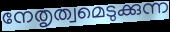
നേതൃത്വമെടുക്കുന്ന